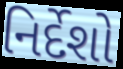
નિર્દેશો